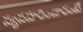
వ్యవహరించారంటే